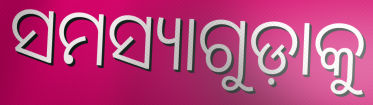
ସମସ୍ୟାଗୁଡ଼ାକୁ